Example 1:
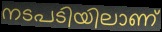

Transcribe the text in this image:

നടപടിയിലാണ്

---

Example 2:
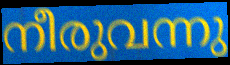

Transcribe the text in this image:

നീരുവന്നു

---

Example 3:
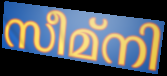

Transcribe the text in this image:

സീമ്നി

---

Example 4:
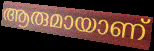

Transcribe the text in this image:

ആരുമായാണ്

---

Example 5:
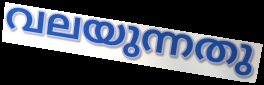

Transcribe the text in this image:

വലയുന്നതു